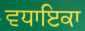
ਵਧਾਇਕਾ